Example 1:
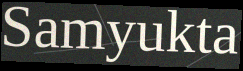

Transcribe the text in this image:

Samyukta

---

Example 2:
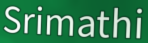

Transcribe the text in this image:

Srimathi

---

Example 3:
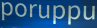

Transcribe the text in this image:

poruppu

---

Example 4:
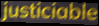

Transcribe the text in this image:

justiciable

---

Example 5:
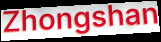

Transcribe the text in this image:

Zhongshan